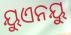
ୟୁଏନୟୁ